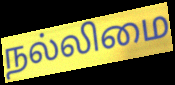
நல்லிமை